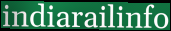
indiarailinfo